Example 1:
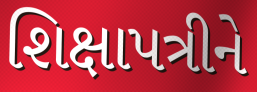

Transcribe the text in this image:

શિક્ષાપત્રીને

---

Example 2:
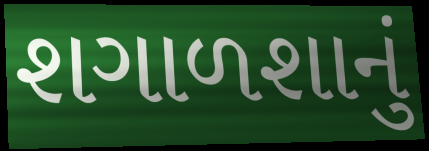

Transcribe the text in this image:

શગાળશાનું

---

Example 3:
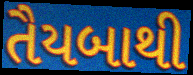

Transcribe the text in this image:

તૈયબાથી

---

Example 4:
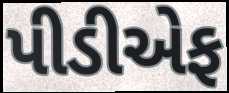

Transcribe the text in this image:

પીડીએફ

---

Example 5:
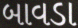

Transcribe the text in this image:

બાવડા